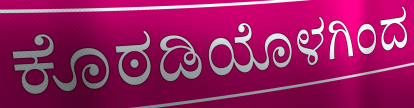
ಕೊಠಡಿಯೊಳಗಿಂದ